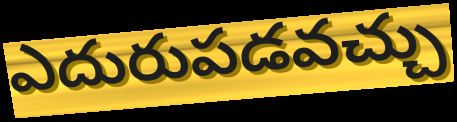
ఎదురుపడవచ్చు